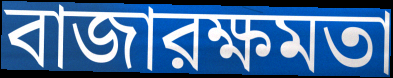
বাজারক্ষমতা